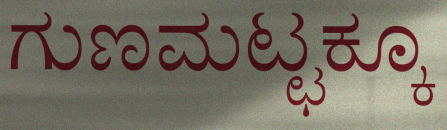
ಗುಣಮಟ್ಟಕ್ಕೂ